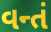
વન્તં